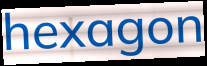
hexagon